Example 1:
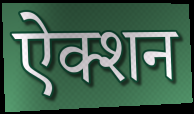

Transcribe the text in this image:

ऐक्शन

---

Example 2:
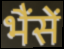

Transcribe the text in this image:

भैंसें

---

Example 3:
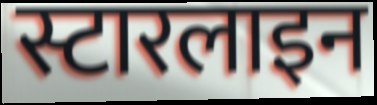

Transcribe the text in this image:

स्टारलाइन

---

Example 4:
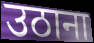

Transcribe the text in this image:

उठाना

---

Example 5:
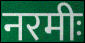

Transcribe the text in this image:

नरमीः